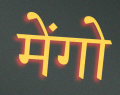
मेंगो